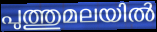
പുത്തുമലയിൽ